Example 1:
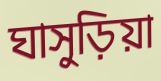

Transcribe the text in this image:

ঘাসুড়িয়া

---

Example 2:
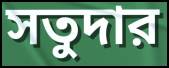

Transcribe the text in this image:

সতুদার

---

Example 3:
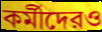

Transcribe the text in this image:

কর্মীদেরও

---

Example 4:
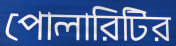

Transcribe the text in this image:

পোলারিটির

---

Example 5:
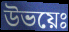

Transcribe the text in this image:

উভয়েঃ